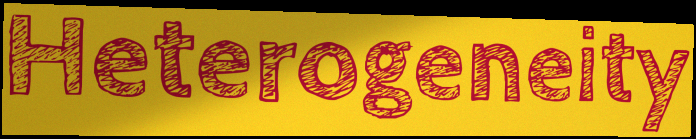
Heterogeneity